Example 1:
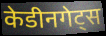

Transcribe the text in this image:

केडीनगेट्स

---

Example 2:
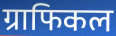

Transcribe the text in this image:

ग्राफिकल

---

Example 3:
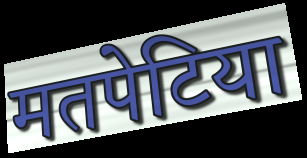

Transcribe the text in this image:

मतपेटिया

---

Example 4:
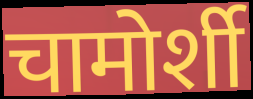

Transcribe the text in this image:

चामोर्शी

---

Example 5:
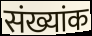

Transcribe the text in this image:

संख्यांक